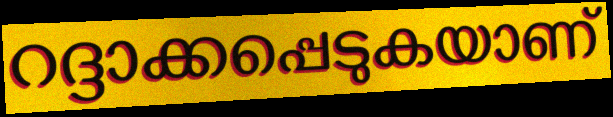
റദ്ദാക്കപ്പെടുകയാണ്